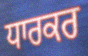
ਧਾਰਕਰ